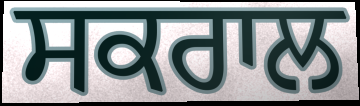
ਸਕਰਾਲ